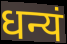
धन्यं